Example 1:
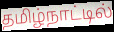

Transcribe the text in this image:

தமிழ்நாட்டில்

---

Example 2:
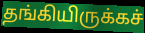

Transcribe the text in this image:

தங்கியிருக்கச்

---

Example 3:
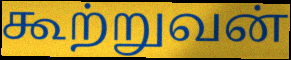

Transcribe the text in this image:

கூற்றுவன்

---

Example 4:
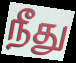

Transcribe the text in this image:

நீது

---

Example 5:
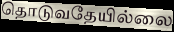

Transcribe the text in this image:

தொடுவதேயில்லை